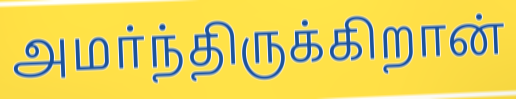
அமர்ந்திருக்கிறான்